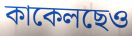
কাকেলছেও